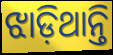
ଝାଡ଼ିଥାନ୍ତି